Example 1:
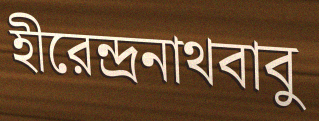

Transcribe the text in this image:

হীরেন্দ্রনাথবাবু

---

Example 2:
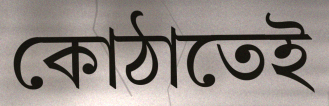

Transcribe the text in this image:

কোঠাতেই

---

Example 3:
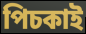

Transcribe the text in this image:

পিচকাই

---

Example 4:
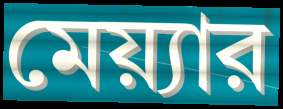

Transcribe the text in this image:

মেয়্যার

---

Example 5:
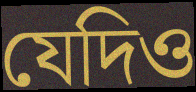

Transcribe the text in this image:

যেদিও